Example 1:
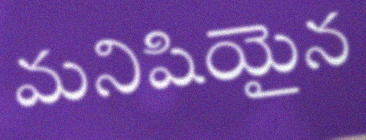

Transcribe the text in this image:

మనిషియైన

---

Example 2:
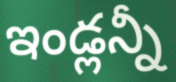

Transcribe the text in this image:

ఇండ్లన్నీ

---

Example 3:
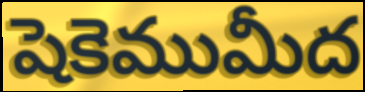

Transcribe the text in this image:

షెకెముమీద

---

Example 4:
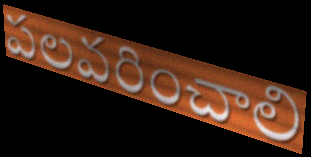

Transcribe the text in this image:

పలవరించాలి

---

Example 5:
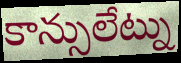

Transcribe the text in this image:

కాన్సులేట్ను